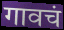
गावचं